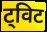
ट्विट